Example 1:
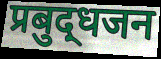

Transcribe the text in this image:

प्रबुद्धजन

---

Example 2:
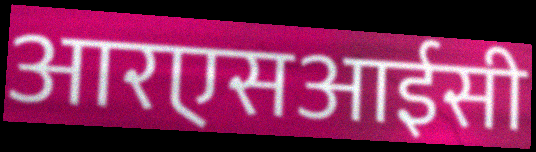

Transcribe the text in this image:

आरएसआईसी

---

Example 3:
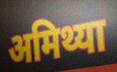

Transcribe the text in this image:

अमिथ्या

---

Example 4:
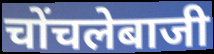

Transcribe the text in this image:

चोंचलेबाजी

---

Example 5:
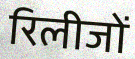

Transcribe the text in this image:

रिलीजों